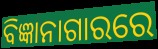
ବିଜ୍ଞାନାଗାରରେ